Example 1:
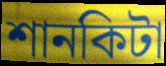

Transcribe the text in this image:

শানকিটা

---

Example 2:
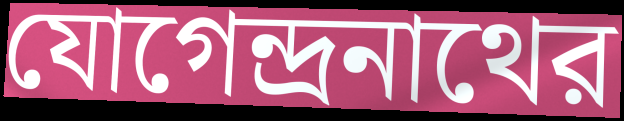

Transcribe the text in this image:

যোগেন্দ্রনাথের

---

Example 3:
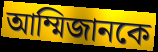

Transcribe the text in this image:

আম্মিজানকে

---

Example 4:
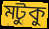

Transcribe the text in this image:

মটুকু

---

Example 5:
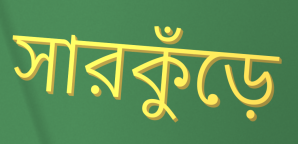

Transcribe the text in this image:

সারকুঁড়ে